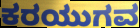
ಕರಯುಗವ